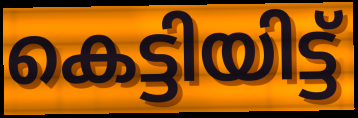
കെട്ടിയിട്ട്